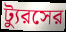
ট্যুরসের